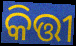
କିତ୍ତୀ